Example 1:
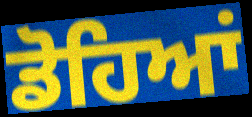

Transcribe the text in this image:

ਡੋਹਿਆਂ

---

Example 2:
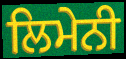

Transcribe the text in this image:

ਲਿਮੇਨੀ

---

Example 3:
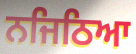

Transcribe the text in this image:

ਨਜਿਠਿਆ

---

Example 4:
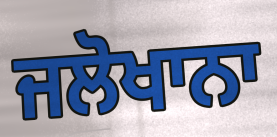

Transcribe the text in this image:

ਜਲੋਖਾਨਾ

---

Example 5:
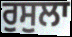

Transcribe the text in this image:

ਰੁਸੁਲਾ